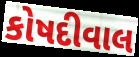
કોષદીવાલ